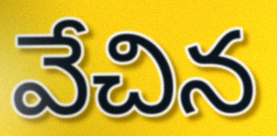
వేచిన